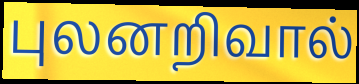
புலனறிவால்